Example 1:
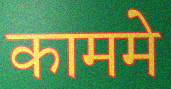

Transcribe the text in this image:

काममे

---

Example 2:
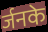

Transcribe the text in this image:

र्जनके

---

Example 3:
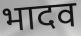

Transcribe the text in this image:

भादव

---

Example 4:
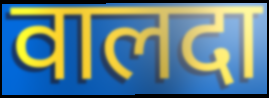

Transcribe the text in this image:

वालदा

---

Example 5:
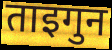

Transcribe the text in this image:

ताइगुन